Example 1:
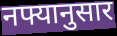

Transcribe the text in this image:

नफ्यानुसार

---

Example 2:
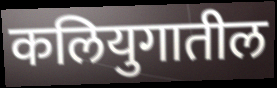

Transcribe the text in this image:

कलियुगातील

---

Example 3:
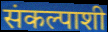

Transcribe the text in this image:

संकल्पाशी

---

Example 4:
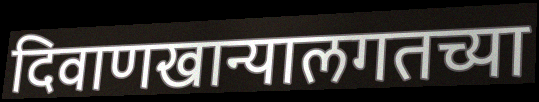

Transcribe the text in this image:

दिवाणखान्यालगतच्या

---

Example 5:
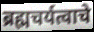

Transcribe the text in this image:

ब्रह्मचर्यत्वाचे